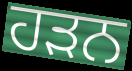
ਹੜਨ